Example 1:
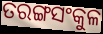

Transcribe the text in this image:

ତରଙ୍ଗସଂକୁଳ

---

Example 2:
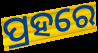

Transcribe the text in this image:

ପ୍ରହରେ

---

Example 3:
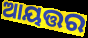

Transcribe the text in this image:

ଆୟତ୍ତର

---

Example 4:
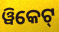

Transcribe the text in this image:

ୱିକେଟ୍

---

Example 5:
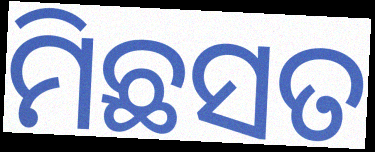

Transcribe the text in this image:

ମିଛସତ